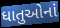
ધાતુઓનાં